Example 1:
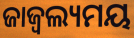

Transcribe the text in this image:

ଜାଜ୍ୱଲ୍ୟମୟ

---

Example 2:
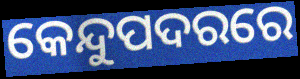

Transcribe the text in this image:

କେନ୍ଦୁପଦରରେ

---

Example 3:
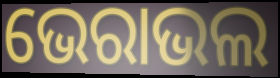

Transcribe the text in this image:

ଭେରାଭଲ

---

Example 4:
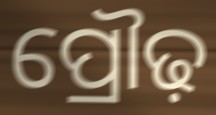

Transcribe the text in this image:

ପ୍ରୌଢ଼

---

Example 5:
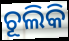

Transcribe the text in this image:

ଚୂଲିକି